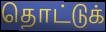
தொட்டுக்